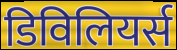
डिविलियर्स